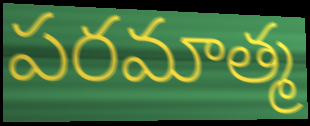
పరమాత్మ